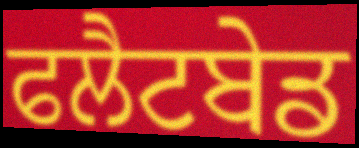
ਫਲੈਟਬੇਡ